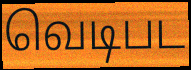
வெடிபட